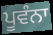
ਪੂਵੰਨਾ